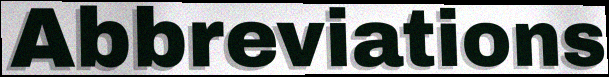
Abbreviations